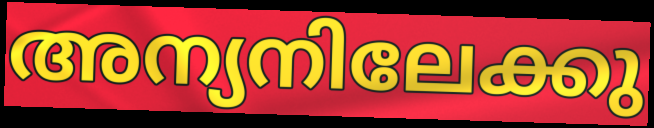
അന്യനിലേക്കു